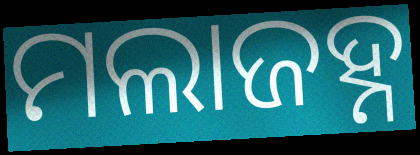
ମଲାଜହ୍ନ